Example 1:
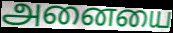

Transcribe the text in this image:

அனையை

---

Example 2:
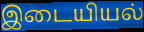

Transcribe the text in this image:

இடையியல்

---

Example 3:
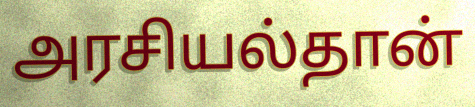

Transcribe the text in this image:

அரசியல்தான்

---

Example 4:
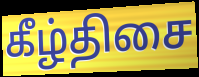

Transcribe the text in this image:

கீழ்திசை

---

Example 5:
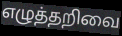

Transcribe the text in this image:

எழுத்தறிவை